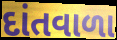
દાંતવાળા